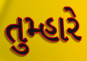
તુમ્હારે